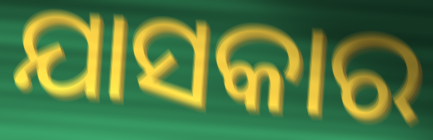
ଯାସକାର